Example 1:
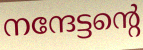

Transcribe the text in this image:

നന്ദേട്ടന്റെ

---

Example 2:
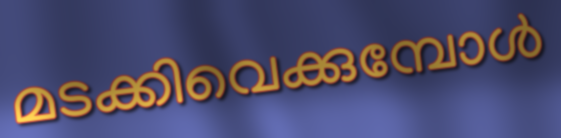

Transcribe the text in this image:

മടക്കിവെക്കുമ്പോൾ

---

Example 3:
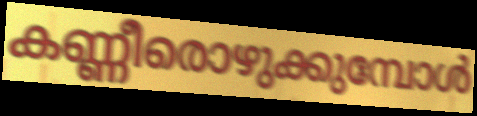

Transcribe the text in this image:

കണ്ണീരൊഴുക്കുമ്പോൾ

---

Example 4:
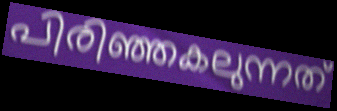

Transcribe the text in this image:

പിരിഞ്ഞകലുന്നത്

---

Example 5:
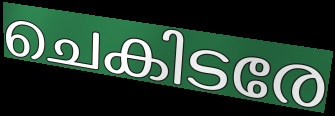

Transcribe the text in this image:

ചെകിടരേ